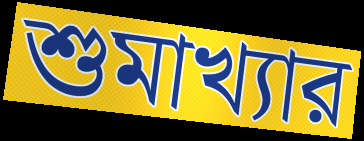
শুমাখ্যার